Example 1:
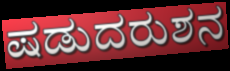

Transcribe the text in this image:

ಷಡುದರುಶನ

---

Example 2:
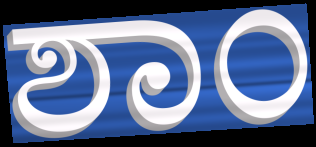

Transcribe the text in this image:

ಶಾಂ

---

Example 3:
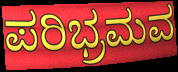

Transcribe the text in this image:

ಪರಿಭ್ರಮವ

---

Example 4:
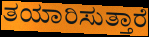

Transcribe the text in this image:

ತಯಾರಿಸುತ್ತಾರೆ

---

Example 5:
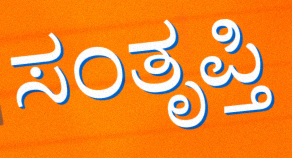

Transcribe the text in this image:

ಸಂತೃಪ್ತಿ